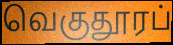
வெகுதூரப்